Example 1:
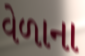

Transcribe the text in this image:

વેળાના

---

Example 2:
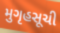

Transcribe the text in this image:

મુગૃહસૂચી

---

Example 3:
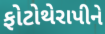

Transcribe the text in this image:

ફોટોથેરાપીને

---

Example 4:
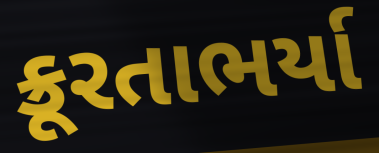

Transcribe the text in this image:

ક્રૂરતાભર્યા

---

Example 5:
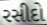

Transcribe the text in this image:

રસીદો